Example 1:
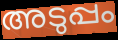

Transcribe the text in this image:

അടുപ്പം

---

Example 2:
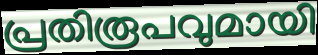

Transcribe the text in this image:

പ്രതിരൂപവുമായി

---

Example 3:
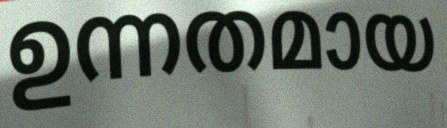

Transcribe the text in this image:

ഉന്നതമായ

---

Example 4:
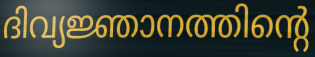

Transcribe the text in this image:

ദിവ്യജ്ഞാനത്തിന്റെ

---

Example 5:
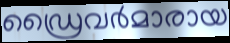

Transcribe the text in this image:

ഡ്രൈവർമാരായ